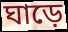
ঘাড়ে